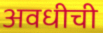
अवधीची